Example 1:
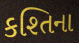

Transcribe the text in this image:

કશ્તિના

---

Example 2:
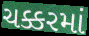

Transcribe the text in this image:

ચક્કરમાં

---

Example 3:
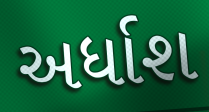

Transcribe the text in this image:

અર્ધાશ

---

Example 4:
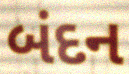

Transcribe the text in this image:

બંદન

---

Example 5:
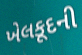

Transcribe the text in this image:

ખેલકૂદની